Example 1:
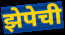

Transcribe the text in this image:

झेपेची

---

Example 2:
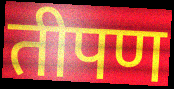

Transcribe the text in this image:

तीपण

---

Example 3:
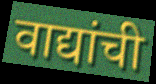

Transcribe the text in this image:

वाद्यांची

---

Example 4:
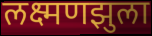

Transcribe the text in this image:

लक्ष्मणझुला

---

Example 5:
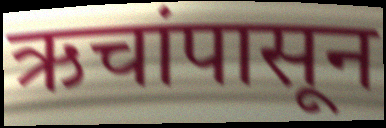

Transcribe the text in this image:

ऋचांपासून